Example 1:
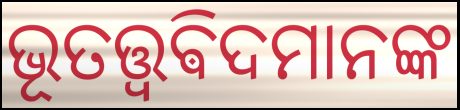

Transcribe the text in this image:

ଭୂତତ୍ତ୍ୱଵିଦମାନଙ୍କ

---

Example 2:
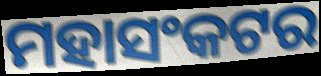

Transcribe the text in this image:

ମହାସଂକଟର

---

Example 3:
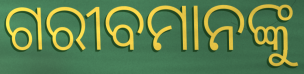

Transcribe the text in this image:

ଗରୀବମାନଙ୍କୁ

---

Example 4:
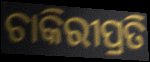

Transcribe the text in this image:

ଚାକିରୀପ୍ରତି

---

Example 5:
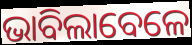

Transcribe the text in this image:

ଭାବିଲାବେଳେ